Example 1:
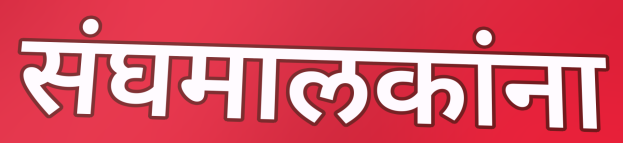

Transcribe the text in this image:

संघमालकांना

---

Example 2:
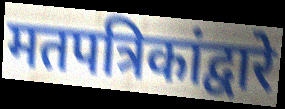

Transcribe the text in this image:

मतपत्रिकांद्वारे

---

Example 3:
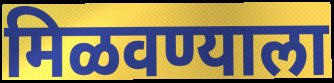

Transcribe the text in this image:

मिळवण्याला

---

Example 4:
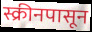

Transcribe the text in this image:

स्क्रीनपासून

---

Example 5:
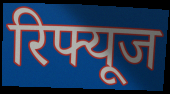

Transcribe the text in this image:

रिफ्यूज